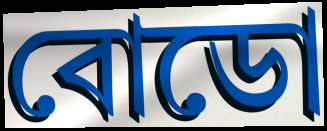
বোডো